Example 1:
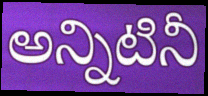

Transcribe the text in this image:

అన్నిటినీ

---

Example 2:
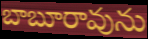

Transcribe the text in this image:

బాబూరావును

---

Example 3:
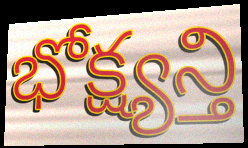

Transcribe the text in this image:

భోక్ష్యన్తి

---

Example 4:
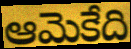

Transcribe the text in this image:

ఆమెకేది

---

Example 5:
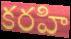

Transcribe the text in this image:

కరహి